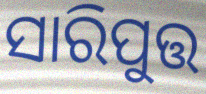
ସାରିପୁତ୍ତ